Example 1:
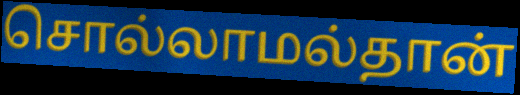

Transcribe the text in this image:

சொல்லாமல்தான்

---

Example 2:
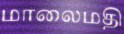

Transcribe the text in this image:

மாலைமதி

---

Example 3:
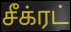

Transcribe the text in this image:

சீக்ரட்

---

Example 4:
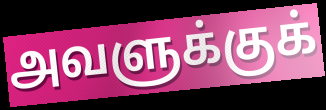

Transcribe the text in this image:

அவளுக்குக்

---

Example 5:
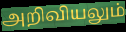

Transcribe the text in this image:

அறிவியலும்